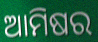
ଆମିଷର